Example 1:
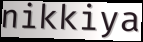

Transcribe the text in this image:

nikkiya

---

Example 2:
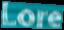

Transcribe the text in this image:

Lore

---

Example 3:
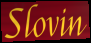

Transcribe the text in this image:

Slovin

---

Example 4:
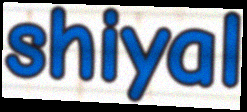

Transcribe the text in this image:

shiyal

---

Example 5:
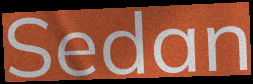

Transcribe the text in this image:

Sedan